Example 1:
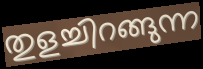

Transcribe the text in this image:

തുളച്ചിറങ്ങുന്ന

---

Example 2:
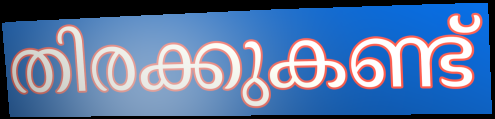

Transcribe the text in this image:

തിരക്കുകണ്ട്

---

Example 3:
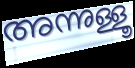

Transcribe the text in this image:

അന്നുള്ളൂ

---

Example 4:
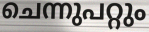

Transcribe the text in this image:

ചെന്നുപറ്റും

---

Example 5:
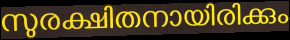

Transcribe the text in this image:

സുരക്ഷിതനായിരിക്കും